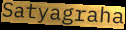
Satyagraha